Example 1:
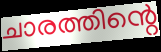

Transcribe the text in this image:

ചാരത്തിന്റെ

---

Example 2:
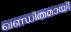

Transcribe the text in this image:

ഖണ്ഡിതമായി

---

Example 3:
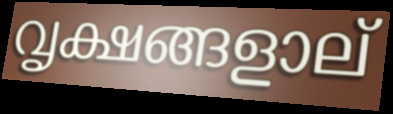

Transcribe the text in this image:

വൃക്ഷങ്ങളാല്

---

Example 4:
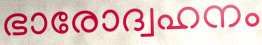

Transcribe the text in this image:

ഭാരോദ്വഹനം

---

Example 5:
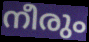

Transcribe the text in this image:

നീരും